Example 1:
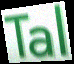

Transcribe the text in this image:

Tal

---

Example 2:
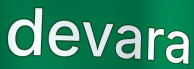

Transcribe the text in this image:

devara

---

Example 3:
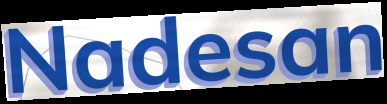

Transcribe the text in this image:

Nadesan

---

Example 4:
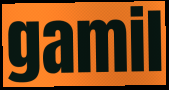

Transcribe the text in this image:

gamil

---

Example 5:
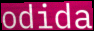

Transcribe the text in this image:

odida